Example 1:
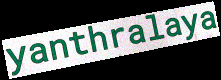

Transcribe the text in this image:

yanthralaya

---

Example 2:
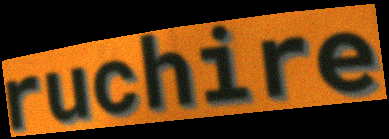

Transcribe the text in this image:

ruchire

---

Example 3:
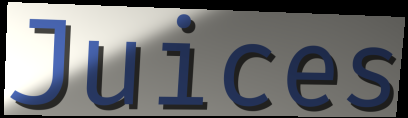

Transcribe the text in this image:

Juices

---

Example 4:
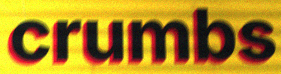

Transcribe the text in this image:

crumbs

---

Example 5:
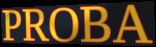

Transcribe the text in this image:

PROBA